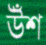
উঁশ